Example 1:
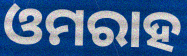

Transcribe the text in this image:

ଓମରାହ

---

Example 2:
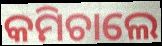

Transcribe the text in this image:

କମିଚାଲେ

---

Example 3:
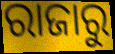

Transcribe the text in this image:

ରାଜାରୁ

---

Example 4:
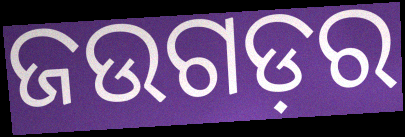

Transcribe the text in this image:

ଜଉଗଡ଼ର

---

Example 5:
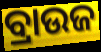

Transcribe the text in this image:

ବ୍ରାଉଜ